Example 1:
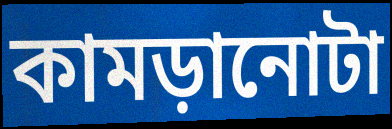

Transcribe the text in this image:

কামড়ানোটা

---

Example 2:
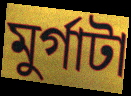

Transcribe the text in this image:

মুর্গাটা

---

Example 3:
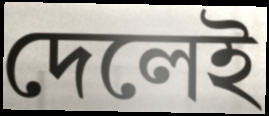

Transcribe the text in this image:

দেলেই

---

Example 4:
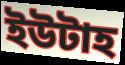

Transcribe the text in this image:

ইউটাহ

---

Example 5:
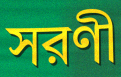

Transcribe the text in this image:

সরণী